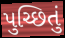
પુચ્છિતું